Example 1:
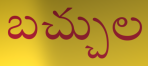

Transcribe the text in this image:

బచ్చుల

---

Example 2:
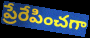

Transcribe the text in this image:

ప్రేరేపించగా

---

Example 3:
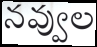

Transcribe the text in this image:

నవ్వుల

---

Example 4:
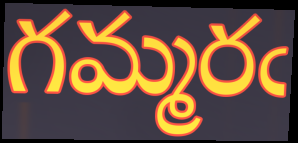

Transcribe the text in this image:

గమ్మరఁ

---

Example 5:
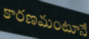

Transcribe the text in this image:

కారణమంటూనే